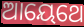
ଆୟେଥେ